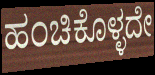
ಹಂಚಿಕೊಳ್ಳದೇ